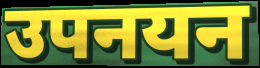
उपनयन